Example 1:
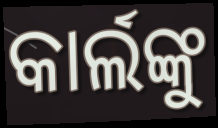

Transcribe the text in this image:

କାର୍ଲଙ୍କୁ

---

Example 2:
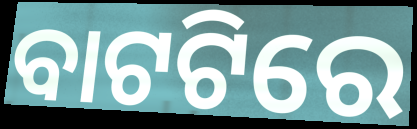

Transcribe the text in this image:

ବାଟଟିରେ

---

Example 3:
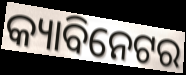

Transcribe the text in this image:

କ୍ୟାବିନେଟର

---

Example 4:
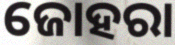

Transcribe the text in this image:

ଜୋହରା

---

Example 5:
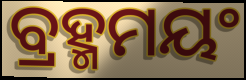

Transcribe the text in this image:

ବ୍ରହ୍ମମୟଂ